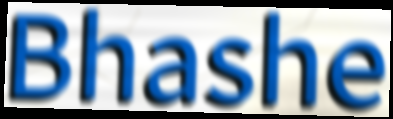
Bhashe